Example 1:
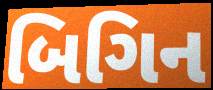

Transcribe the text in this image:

બિગિન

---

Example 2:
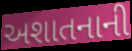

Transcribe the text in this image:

અશાતનાની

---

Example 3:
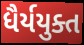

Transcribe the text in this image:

ધૈર્યયુક્ત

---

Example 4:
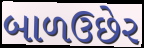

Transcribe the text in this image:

બાળઉછેર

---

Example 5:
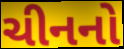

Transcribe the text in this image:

ચીનનો